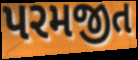
પરમજીત